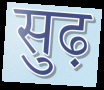
सुढ़